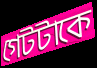
গেটটাকে